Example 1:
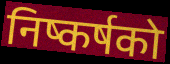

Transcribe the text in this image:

निष्कर्षको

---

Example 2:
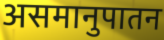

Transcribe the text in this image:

असमानुपातन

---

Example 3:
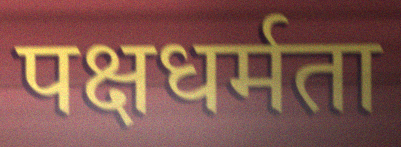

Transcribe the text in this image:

पक्षधर्मता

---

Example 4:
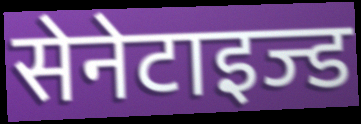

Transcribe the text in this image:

सेनेटाइज्ड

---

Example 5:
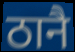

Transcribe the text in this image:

ठानै